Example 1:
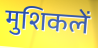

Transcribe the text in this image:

मुशिकलें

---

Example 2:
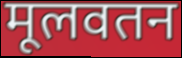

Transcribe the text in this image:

मूलवतन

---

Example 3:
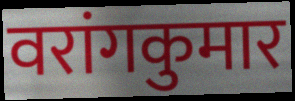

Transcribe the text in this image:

वरांगकुमार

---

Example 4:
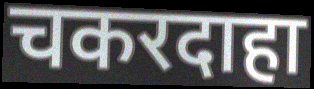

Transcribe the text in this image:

चकरदाहा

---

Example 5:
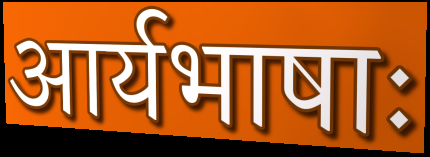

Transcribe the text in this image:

आर्यभाषाः